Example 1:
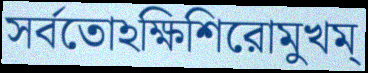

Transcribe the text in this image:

সর্বতোঽক্ষিশিরোমুখম্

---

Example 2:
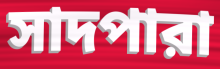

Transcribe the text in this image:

সাদপারা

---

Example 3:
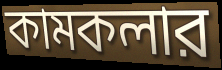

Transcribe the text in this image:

কামকলার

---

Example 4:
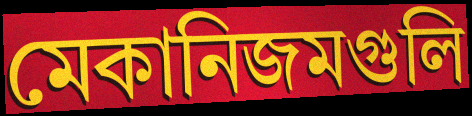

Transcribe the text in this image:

মেকানিজমগুলি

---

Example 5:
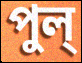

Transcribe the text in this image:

পুল্